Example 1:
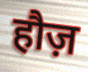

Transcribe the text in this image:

हौज़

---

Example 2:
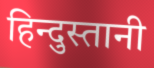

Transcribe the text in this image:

हिन्‍दुस्‍तानी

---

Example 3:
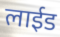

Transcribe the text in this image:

लाईड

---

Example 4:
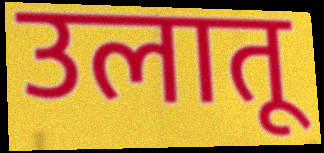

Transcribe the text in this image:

उलातू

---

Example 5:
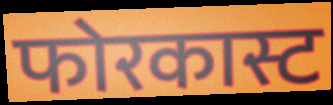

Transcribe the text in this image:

फोरकास्ट